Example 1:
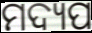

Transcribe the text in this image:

ମଦ୍ୟପ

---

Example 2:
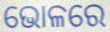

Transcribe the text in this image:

ଭୋଳରେ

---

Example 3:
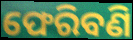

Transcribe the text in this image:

ଫେରିବଣି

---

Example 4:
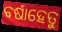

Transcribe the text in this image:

ବର୍ଷାହେତୁ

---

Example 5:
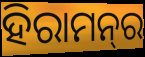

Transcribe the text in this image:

ହିରାମନ୍‍ର